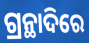
ଗ୍ରନ୍ଥାଦିରେ